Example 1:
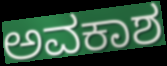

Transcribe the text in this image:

ಅವಕಾಶ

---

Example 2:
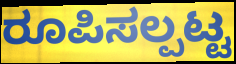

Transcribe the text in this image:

ರೂಪಿಸಲ್ಪಟ್ಟ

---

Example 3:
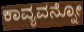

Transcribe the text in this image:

ಕಾವ್ಯವನ್ನೋ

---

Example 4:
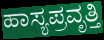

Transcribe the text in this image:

ಹಾಸ್ಯಪ್ರವೃತ್ತಿ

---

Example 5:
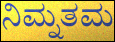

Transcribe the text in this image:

ನಿಮ್ನತಮ